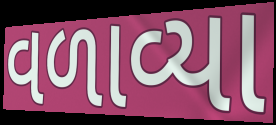
વળાવ્યા